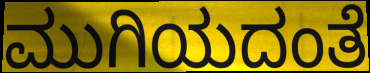
ಮುಗಿಯದಂತೆ